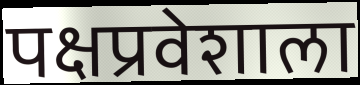
पक्षप्रवेशाला